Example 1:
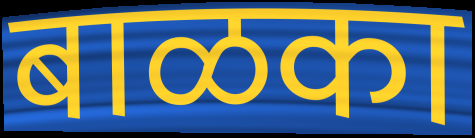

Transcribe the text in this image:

बाळका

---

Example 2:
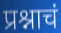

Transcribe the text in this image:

प्रश्नाचं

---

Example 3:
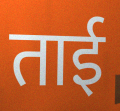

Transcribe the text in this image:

ताई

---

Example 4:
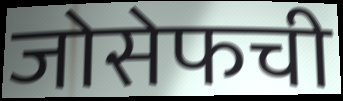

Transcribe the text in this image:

जोसेफची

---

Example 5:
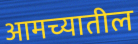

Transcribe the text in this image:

आमच्यातील